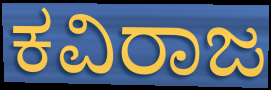
ಕವಿರಾಜ